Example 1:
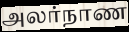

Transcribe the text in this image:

அலர்நாண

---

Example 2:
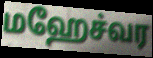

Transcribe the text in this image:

மஹேச்வர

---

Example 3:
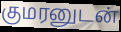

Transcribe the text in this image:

குமரனுடன்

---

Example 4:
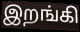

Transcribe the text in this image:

இறங்கி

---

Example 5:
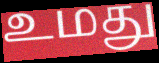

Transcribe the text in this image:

உமது